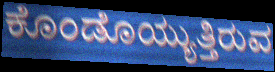
ಕೊಂಡೊಯ್ಯುತ್ತಿರುವ